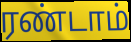
ரண்டாம்